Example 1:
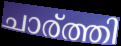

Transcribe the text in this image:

ചാര്ത്തി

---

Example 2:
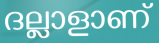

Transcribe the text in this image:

ദല്ലാളാണ്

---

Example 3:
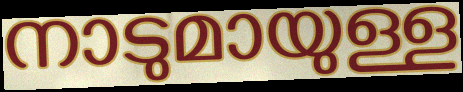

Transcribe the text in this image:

നാടുമായുള്ള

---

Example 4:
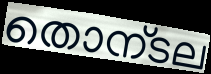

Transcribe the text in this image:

തൊന്ടല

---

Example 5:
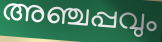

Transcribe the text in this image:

അഞ്ചപ്പവും